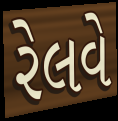
રેલવે